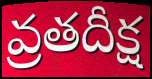
వ్రతదీక్ష